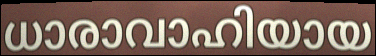
ധാരാവാഹിയായ